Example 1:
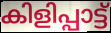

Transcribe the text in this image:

കിളിപ്പാട്ട്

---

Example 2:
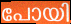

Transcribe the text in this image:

പോയി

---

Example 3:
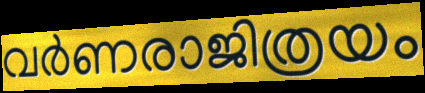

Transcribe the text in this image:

വർണരാജിത്രയം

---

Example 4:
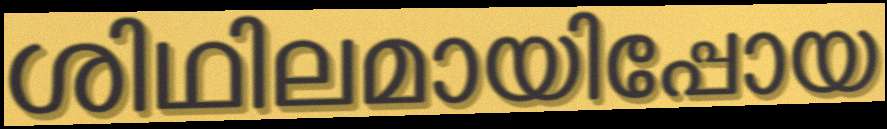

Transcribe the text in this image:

ശിഥിലമായിപ്പോയ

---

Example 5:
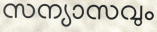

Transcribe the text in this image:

സന്യാസവും